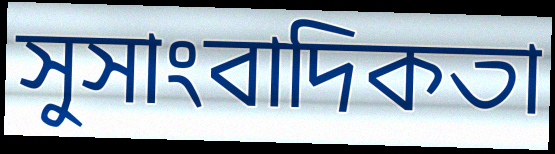
সুসাংবাদিকতা